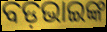
ବଡ଼ଭାଇଙ୍କ